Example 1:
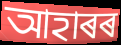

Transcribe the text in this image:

আহাৰৰ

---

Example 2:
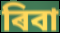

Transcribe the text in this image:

ৰিবা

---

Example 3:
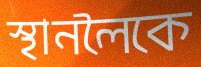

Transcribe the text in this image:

স্থানলৈকে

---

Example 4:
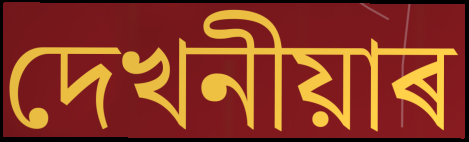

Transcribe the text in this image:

দেখনীয়াৰ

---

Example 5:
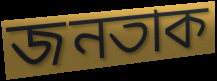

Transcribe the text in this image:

জনতাক